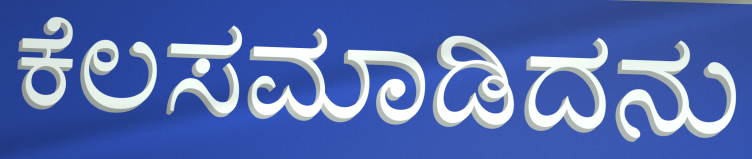
ಕೆಲಸಮಾಡಿದನು